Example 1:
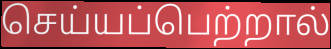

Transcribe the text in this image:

செய்யப்பெற்றால்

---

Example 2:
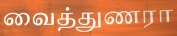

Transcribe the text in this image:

வைத்துணரா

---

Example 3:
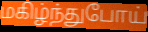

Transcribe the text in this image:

மகிழ்ந்துபோய்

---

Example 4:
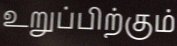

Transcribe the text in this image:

உறுப்பிற்கும்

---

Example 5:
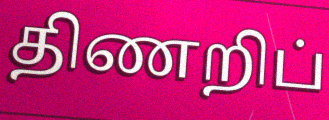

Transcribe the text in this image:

திணறிப்